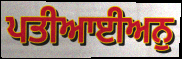
ਪਤੀਆਈਅਨੁ